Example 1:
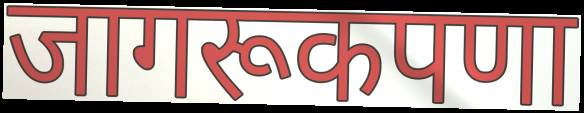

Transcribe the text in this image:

जागरूकपणा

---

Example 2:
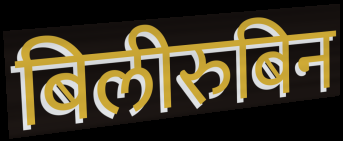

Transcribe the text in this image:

बिलीरुबिन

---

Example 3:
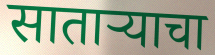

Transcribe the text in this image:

साताऱ्याचा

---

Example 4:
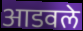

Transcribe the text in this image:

आडवले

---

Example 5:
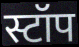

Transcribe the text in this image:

स्टॉप